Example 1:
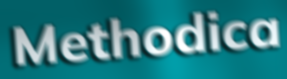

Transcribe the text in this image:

Methodica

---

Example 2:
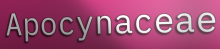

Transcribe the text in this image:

Apocynaceae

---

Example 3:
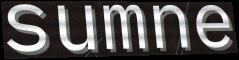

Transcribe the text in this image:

sumne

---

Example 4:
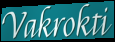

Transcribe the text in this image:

Vakrokti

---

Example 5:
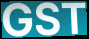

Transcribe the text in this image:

GST